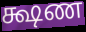
க்ஷண